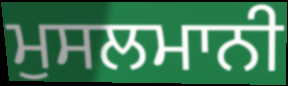
ਮੁਸਲਮਾਨੀ